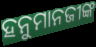
ହନୁମାନଜୀଙ୍କ